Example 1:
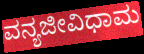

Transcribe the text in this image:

ವನ್ಯಜೀವಿಧಾಮ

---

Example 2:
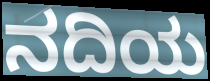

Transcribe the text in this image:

ನದಿಯ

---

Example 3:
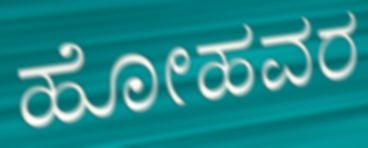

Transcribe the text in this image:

ಹೋಹವರ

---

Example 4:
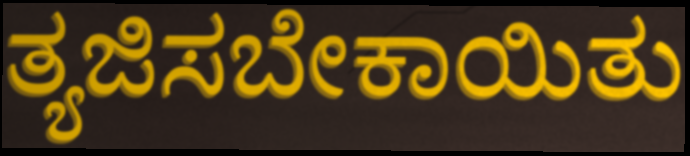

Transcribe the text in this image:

ತ್ಯಜಿಸಬೇಕಾಯಿತು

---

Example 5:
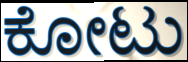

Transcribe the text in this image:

ಕೋಟು